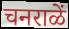
चनराळें